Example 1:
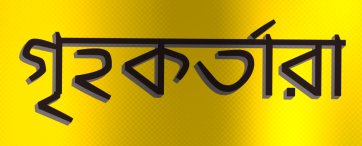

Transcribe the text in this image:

গৃহকর্তারা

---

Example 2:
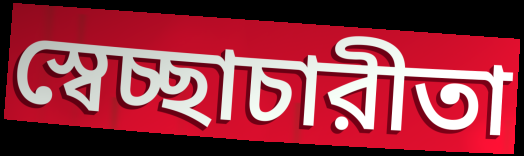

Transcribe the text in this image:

স্বেচ্ছাচারীতা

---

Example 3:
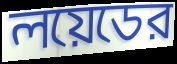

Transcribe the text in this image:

লয়েডের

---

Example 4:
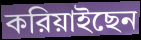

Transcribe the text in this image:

করিয়াইছেন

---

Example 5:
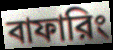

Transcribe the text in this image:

বাফারিং